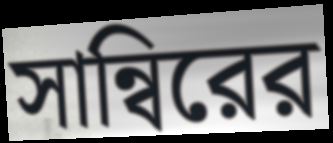
সান্বিরের